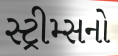
સ્ટ્રીમ્સનો